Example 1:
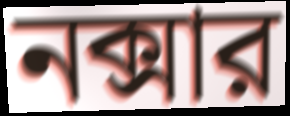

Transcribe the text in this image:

নক্সার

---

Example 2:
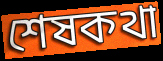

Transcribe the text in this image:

শেষকথা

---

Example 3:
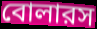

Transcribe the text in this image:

বোলারস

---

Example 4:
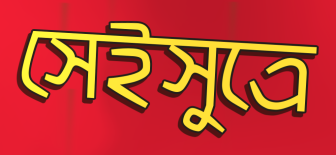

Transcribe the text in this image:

সেইসুত্রে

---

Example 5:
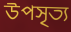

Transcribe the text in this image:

উপসৃত্য